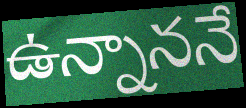
ఉన్నాననే